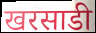
खरसाडी